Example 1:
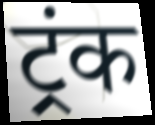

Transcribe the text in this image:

ट्रंक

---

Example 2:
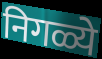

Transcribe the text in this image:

निगळ्ये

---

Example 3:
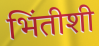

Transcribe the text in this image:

भिंतीशी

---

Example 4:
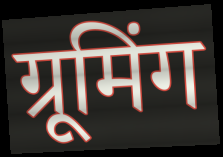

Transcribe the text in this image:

ग्रूमिंग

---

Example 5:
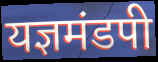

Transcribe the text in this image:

यज्ञमंडपी